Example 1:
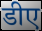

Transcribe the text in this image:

डीए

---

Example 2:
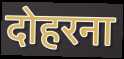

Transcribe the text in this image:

दोहरना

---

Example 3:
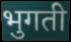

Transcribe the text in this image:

भुगती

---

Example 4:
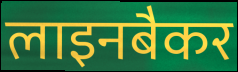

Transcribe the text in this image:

लाइनबैकर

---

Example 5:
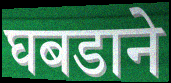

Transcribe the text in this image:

घबडाने